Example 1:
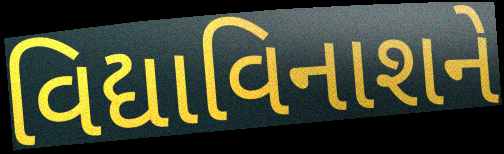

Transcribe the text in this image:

વિદ્યાવિનાશને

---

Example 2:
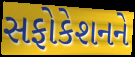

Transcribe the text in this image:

સફોકેશનને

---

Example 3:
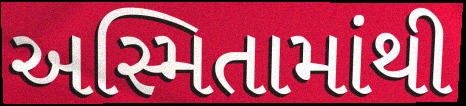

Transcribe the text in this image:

અસ્મિતામાંથી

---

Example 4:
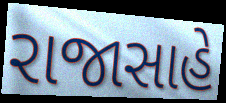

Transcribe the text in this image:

રાજાસાહે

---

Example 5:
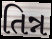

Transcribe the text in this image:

તિન્ન